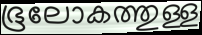
ഭൂലോകത്തുള്ള